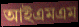
আইএমএম